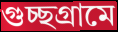
গুচ্ছগ্রামে